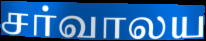
சர்வாலய